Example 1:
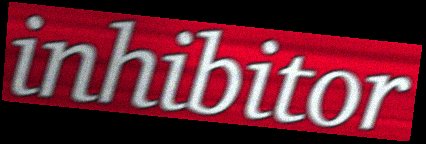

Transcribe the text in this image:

inhibitor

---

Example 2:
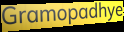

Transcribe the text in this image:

Gramopadhye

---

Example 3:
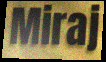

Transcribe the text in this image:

Miraj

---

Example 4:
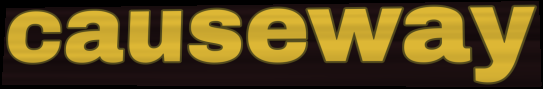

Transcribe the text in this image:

causeway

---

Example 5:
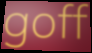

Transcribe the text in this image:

goff